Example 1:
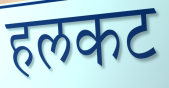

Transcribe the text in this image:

हलकट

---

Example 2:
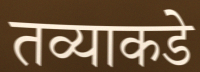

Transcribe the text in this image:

तव्याकडे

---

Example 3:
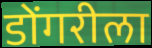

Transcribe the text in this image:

डोंगरीला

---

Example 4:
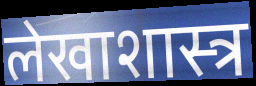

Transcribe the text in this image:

लेखाशास्त्र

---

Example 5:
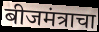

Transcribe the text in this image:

बीजमंत्राचा